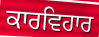
ਕਾਰਵਿਹਾਰ